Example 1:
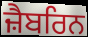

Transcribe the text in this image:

ਜ਼ੈਬਰਿਨ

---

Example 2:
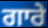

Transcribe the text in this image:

ਗਾਰੇ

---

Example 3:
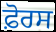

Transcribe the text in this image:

ਫ਼ੋਰਸ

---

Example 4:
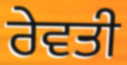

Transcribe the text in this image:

ਰੇਵਤੀ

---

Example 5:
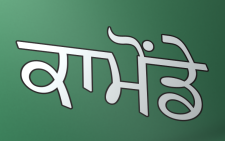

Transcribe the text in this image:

ਕਾਮੋਂਡੇ